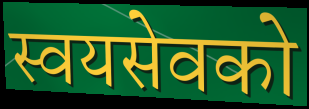
स्वयसेवको